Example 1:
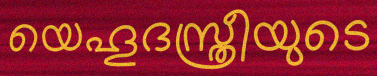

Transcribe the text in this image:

യെഹൂദസ്ത്രീയുടെ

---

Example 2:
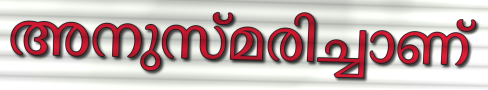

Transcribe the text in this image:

അനുസ്മരിച്ചാണ്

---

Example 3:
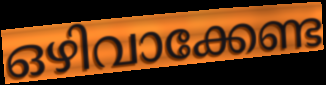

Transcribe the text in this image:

ഒഴിവാക്കേണ്ട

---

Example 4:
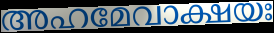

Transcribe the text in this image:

അഹമേവാക്ഷയഃ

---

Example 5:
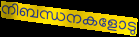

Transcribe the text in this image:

നിബന്ധനകളോടു